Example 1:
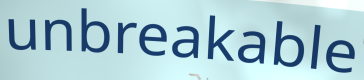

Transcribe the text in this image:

unbreakable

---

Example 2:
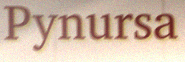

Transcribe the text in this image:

Pynursa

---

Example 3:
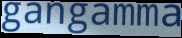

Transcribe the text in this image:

gangamma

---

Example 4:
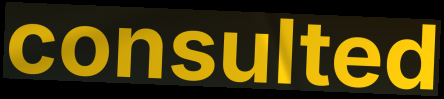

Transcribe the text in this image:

consulted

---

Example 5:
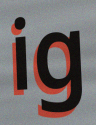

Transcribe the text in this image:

ig